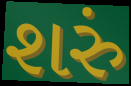
શરું